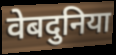
वेबदुनिया